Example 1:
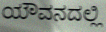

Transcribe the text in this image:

ಯೌವನದಲ್ಲಿ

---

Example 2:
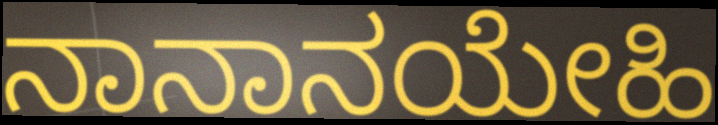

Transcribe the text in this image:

ನಾನಾನಯೇಹಿ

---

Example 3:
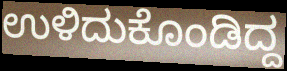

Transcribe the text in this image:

ಉಳಿದುಕೊಂಡಿದ್ದ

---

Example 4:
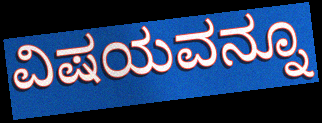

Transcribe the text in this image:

ವಿಷಯವನ್ನೂ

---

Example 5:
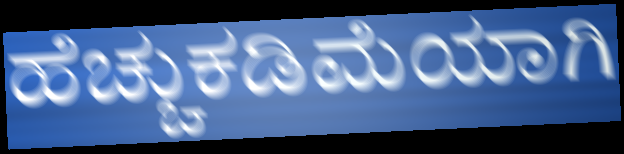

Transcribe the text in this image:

ಹೆಚ್ಚುಕಡಿಮೆಯಾಗಿ